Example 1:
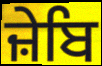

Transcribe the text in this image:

ਜ਼ੇਬਿ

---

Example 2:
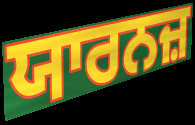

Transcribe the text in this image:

ਯਾਰਨਜ਼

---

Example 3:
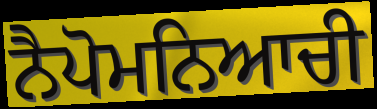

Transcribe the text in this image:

ਨੈਪੋਮਨਿਆਚੀ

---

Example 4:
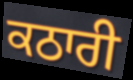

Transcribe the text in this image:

ਕਠਾਰੀ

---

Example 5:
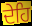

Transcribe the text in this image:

ਦੇਹਿ